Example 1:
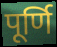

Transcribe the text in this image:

पूर्णि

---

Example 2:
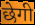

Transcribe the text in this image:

छेगी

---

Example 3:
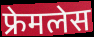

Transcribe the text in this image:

फ्रेमलेस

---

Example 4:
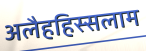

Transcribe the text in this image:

अलैहहिस्सलाम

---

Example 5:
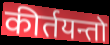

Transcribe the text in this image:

कीर्तयन्तो